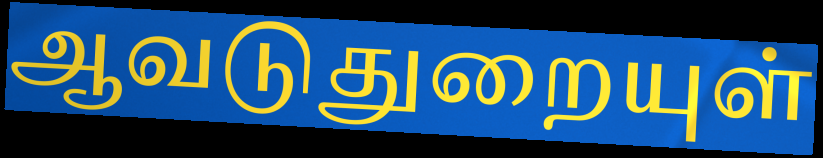
ஆவடுதுறையுள்